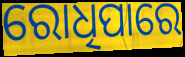
ରୋଧିପାରେ